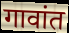
गावांत